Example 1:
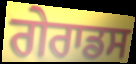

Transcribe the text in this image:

ਗੇਰਾਡਸ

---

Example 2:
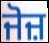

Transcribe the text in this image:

ਜੋਜ਼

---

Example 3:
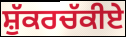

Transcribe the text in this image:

ਸ਼ੁੱਕਰਚੱਕੀਏ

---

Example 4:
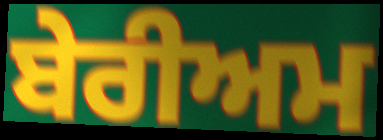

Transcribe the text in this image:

ਬੇਰੀਅਮ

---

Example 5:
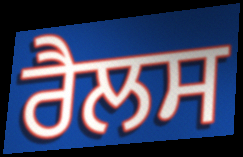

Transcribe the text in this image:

ਰੈਲਸ